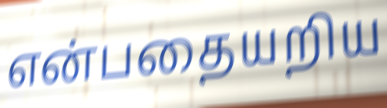
என்பதையறிய